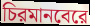
চিরমানবেরে